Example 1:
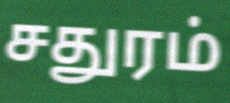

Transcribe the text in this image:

சதுரம்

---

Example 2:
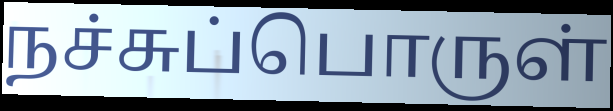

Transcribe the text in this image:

நச்சுப்பொருள்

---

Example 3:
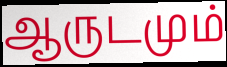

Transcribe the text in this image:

ஆருடமும்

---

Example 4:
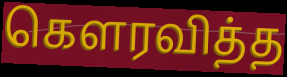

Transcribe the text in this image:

கெளரவித்த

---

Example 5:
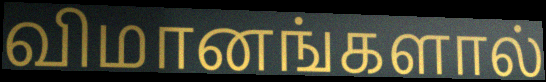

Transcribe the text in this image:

விமானங்களால்